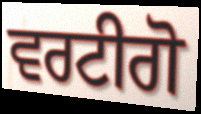
ਵਰਟੀਗੋ